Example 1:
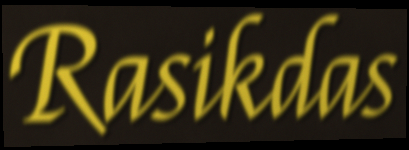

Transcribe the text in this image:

Rasikdas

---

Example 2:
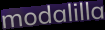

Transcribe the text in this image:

modalilla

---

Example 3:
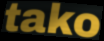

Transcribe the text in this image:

tako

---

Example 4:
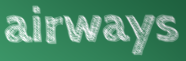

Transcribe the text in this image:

airways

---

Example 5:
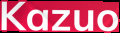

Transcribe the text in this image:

Kazuo